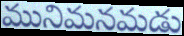
మునిమనమడు